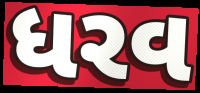
ધરવ